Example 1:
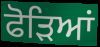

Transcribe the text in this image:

ਫੋੜਿਆਂ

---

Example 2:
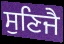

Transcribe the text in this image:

ਸੁਣਿਜੈ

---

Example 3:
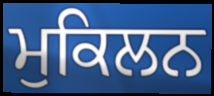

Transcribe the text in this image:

ਮੁਕਿਲਨ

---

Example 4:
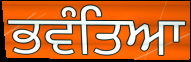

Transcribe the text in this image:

ਭਵੰਤਿਆ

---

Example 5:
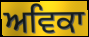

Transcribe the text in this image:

ਅਵਿਕਾ